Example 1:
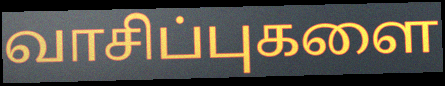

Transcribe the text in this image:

வாசிப்புகளை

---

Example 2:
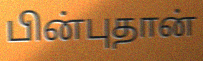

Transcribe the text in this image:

பின்புதான்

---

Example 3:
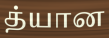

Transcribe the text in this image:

த்யான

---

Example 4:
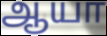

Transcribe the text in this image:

ஆயா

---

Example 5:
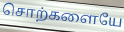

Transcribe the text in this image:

சொற்களையே